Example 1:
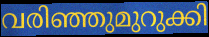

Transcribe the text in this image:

വരിഞ്ഞുമുറുക്കി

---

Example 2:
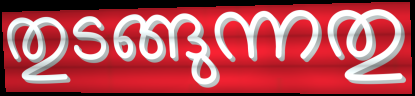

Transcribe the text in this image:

തുടങ്ങുന്നതു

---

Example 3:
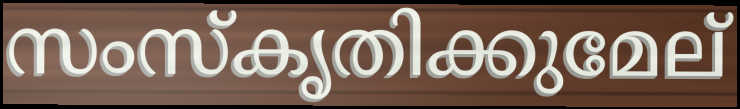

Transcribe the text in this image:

സംസ്കൃതിക്കുമേല്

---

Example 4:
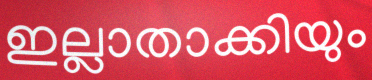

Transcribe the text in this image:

ഇല്ലാതാക്കിയും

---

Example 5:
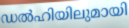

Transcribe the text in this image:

ഡൽഹിയിലുമായി